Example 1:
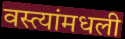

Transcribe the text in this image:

वस्त्यांमधली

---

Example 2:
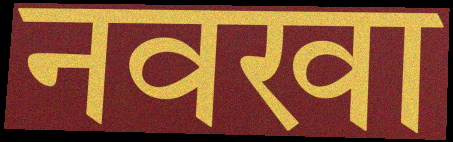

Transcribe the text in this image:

नवखा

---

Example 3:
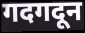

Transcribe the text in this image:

गदगदून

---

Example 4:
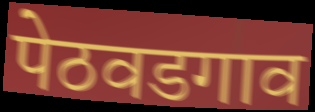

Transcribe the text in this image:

पेठवडगाव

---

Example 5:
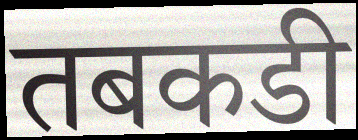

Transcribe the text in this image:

तबकडी